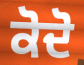
ਕੋਦੋ